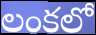
లంకలో